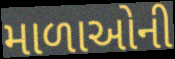
માળાઓની